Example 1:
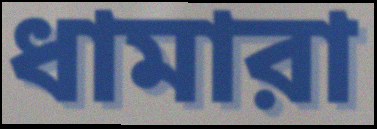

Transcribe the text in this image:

ধামারা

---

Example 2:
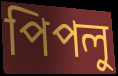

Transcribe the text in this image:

পিপলু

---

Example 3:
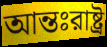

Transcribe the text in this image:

আন্তঃরাষ্ট্র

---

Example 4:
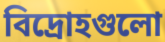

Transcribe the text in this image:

বিদ্রোহগুলো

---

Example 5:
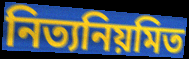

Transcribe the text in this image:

নিত্যনিয়মিত